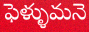
ఫెళ్ళుమనె